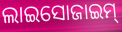
ଲାଇସୋଜାଇମ୍